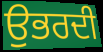
ਉਭਰਦੀ